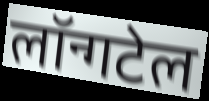
लॉन्गटेल